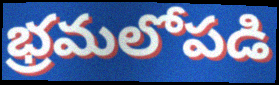
భ్రమలోపడి